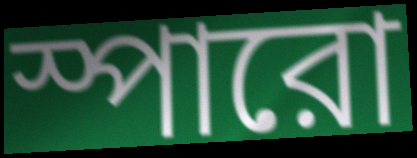
স্পারো